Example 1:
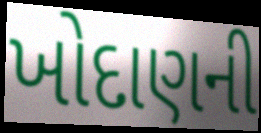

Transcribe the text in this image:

ખોદાણની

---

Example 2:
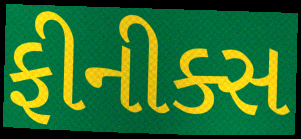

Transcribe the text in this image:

ફીનીક્સ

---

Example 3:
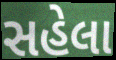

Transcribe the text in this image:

સહેલા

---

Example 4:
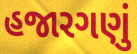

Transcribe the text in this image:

હજારગણું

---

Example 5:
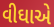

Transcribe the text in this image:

વીઘાએ